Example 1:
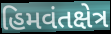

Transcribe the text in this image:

હિમવંતક્ષેત્ર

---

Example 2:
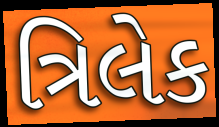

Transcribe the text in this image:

ત્રિલેક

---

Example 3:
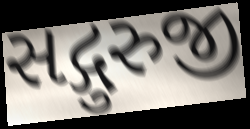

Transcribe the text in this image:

સદ્ગુરુજી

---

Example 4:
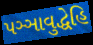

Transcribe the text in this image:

પઞ્ઞાવુદ્ધેહિ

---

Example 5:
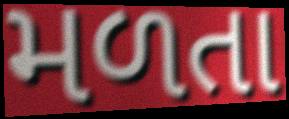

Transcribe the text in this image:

મળતા